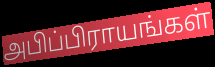
அபிப்பிராயங்கள்